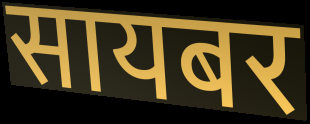
सायबर